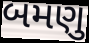
બમણુ